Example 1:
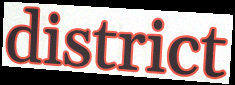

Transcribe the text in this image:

district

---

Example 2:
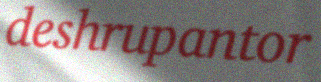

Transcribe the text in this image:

deshrupantor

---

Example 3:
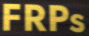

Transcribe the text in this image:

FRPs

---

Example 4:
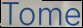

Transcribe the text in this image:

Tome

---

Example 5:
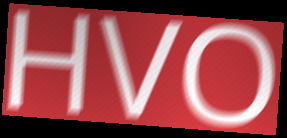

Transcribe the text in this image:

HVO